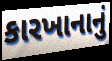
કારખાનાનું